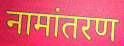
नामांतरण